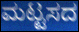
ಮಟ್ಟಸದ